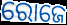
ରୋଜେ